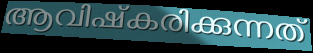
ആവിഷ്‌കരിക്കുന്നത്